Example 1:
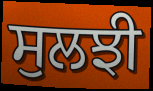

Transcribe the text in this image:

ਸੁਲਝੀ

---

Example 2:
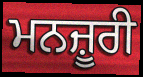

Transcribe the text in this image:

ਮਨਜ਼ੂਰੀ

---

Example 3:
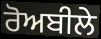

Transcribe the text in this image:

ਰੋਅਬੀਲੇ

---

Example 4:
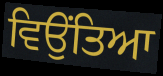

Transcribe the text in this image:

ਵਿਉਂਤਿਆ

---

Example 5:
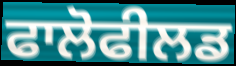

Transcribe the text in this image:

ਫਾਲੋਫੀਲਡ